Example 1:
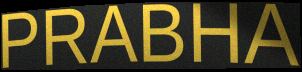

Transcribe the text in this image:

PRABHA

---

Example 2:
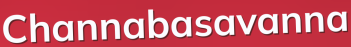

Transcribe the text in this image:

Channabasavanna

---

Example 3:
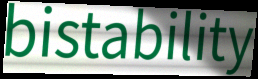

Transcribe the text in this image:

bistability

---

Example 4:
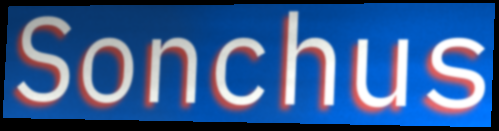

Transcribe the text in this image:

Sonchus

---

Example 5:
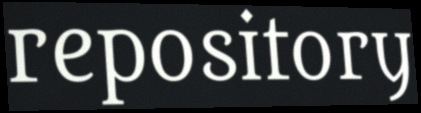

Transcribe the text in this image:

repository